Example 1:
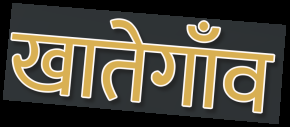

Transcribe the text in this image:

खातेगाँव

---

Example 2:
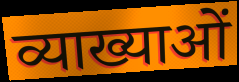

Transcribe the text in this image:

व्याख्याओं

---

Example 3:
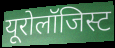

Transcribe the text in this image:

यूरोलॉजिस्ट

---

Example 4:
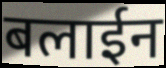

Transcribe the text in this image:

बलाईन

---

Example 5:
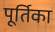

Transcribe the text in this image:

पूर्तिका